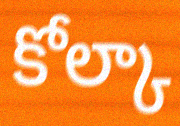
కోల్కా